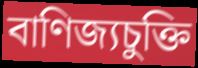
বাণিজ্যচুক্তি